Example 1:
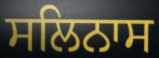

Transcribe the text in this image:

ਸਲਿਨਾਸ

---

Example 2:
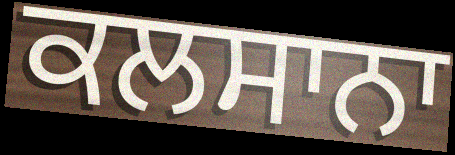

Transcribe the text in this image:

ਕਲਸਾਨਾ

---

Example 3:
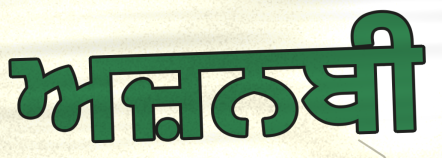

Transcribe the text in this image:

ਅਜ਼ਨਬੀ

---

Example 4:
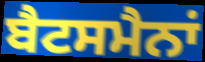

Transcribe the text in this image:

ਬੈਟਸਮੈਨਾਂ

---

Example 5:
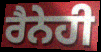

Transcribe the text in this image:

ਰੈਨੇਹੀ